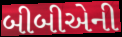
બીબીએની